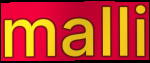
malli